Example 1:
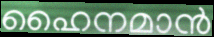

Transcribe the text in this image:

ഹൈനമാൻ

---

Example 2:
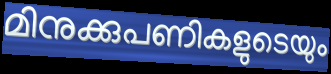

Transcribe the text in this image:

മിനുക്കുപണികളുടെയും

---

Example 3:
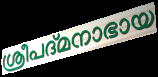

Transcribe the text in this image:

ശ്രീപദ്മനാഭായ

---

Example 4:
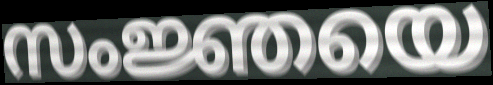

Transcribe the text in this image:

സംജ്ഞയെ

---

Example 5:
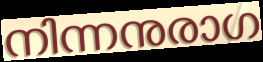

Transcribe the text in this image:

നിന്നനുരാഗ